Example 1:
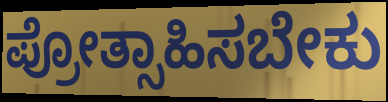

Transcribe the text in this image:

ಪ್ರೋತ್ಸಾಹಿಸಬೇಕು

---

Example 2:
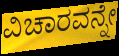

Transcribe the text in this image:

ವಿಚಾರವನ್ನೇ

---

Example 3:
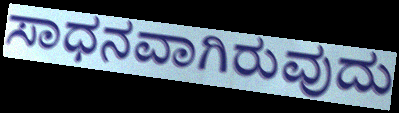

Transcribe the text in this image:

ಸಾಧನವಾಗಿರುವುದು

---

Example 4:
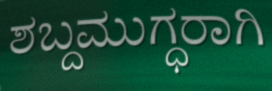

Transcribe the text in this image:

ಶಬ್ದಮುಗ್ಧರಾಗಿ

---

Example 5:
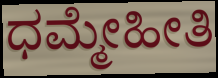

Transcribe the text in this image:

ಧಮ್ಮೇಹೀತಿ